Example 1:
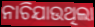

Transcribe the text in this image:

ନାଚିଯାଉଥିଲା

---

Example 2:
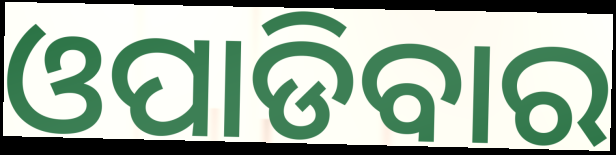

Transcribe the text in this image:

ଓପାଡିବାର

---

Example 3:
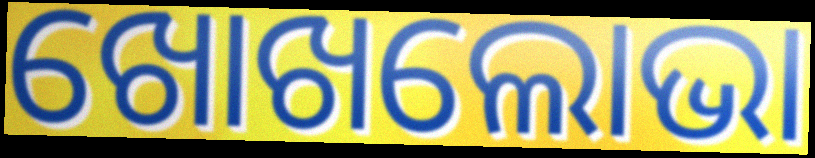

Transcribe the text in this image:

ଖୋଖଲୋଭା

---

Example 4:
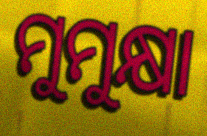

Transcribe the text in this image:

ମୁମୁକ୍ଷା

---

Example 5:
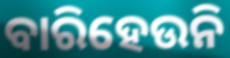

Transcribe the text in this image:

ବାରିହେଉନି